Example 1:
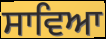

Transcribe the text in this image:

ਸਾਵਿਆ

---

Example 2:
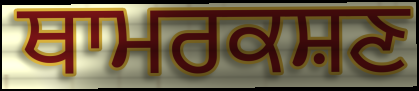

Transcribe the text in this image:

ਥਾਮਰਕਸ਼ਣ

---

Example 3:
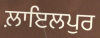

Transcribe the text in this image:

ਲ਼ਾਇਲਪੁਰ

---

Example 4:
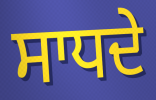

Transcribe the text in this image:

ਸਾਧਦੇ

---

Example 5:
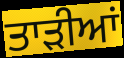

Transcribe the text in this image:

ਤਾੜੀਆਂ